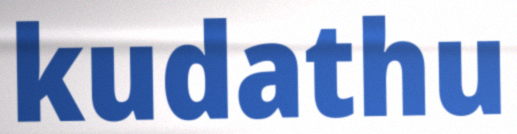
kudathu